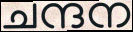
ചന്ദന